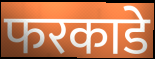
फरकाडे